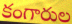
కంగారుల